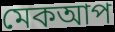
মেকআপ